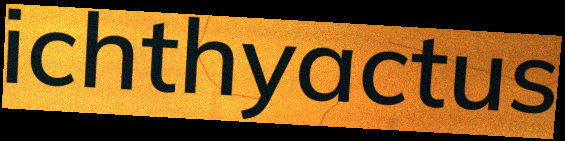
ichthyactus